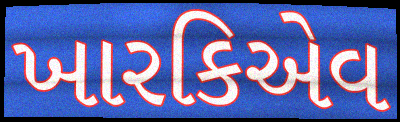
ખારકિએવ